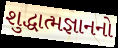
શુદ્ધાત્મજ્ઞાનનો